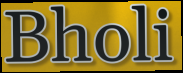
Bholi